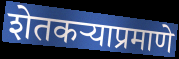
शेतकऱ्याप्रमाणे